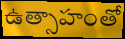
ఉత్సాహంతో